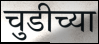
चुडीच्या